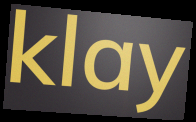
klay